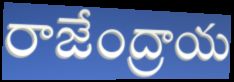
రాజేంద్రాయ